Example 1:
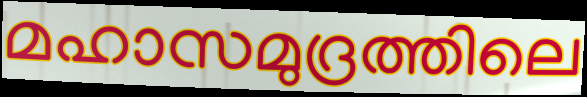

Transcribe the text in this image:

മഹാസമുദ്രത്തിലെ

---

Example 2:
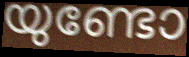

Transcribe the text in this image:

യുണ്ടോ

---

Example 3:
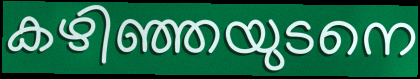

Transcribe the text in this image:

കഴിഞ്ഞയുടനെ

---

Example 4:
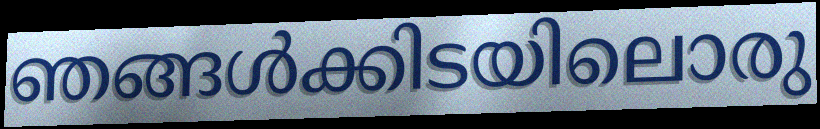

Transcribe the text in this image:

ഞങ്ങൾക്കിടയിലൊരു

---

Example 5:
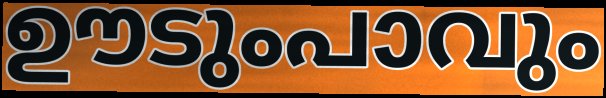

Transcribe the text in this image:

ഊടുംപാവും